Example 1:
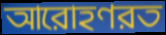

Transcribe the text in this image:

আরোহণরত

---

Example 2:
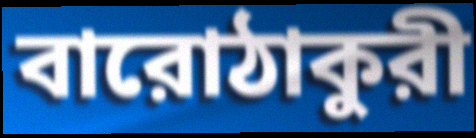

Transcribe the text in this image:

বারোঠাকুরী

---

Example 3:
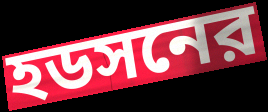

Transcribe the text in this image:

হডসনের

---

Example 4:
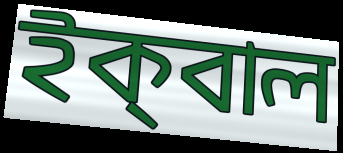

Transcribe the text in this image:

ইক্‌বাল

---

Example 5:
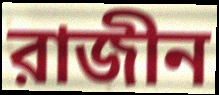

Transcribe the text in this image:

রাজীন